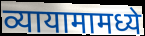
व्यायामामध्ये